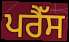
ਪਰੈੱਸ